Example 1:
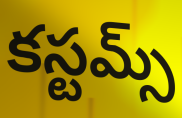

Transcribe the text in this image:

కస్టమ్స్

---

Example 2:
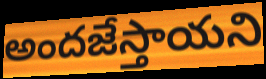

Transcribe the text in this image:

అందజేస్తాయని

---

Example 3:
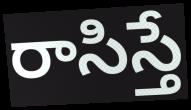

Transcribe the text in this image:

రాసిస్తే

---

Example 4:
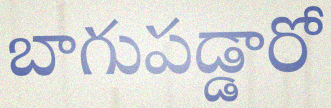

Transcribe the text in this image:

బాగుపడ్డారో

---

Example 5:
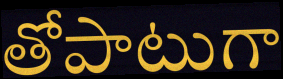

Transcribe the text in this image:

తోపాటుగా